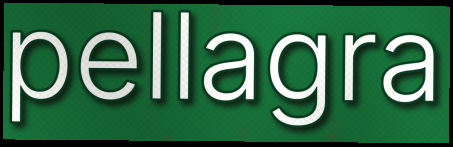
pellagra